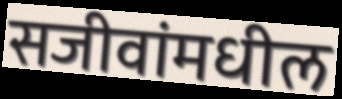
सजीवांमधील